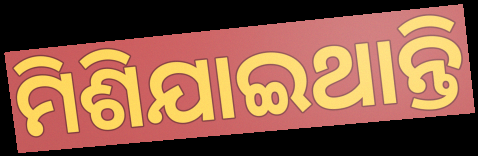
ମିଶିଯାଇଥାନ୍ତି